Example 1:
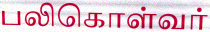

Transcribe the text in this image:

பலிகொள்வர்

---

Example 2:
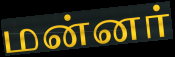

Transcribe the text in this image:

மன்னர்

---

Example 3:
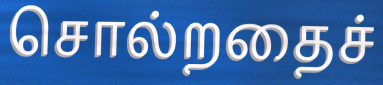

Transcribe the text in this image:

சொல்றதைச்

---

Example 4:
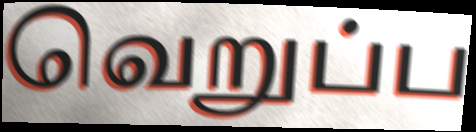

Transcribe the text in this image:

வெறுப்ப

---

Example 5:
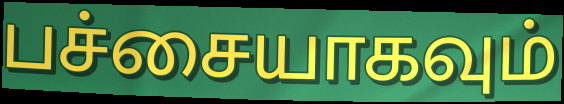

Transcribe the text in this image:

பச்சையாகவும்